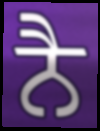
ਨੈ